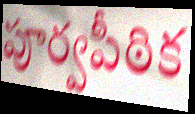
పూర్వపీఠిక